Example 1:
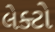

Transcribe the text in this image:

લેક્ટો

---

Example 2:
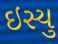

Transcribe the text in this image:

ઇસ્યુ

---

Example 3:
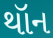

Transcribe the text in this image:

થૉન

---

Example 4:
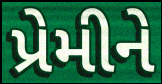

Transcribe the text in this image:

પ્રેમીને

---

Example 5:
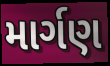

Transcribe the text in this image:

માર્ગણ